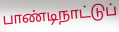
பாண்டிநாட்டுப்